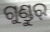
ଗୁଣ୍ଡୁର୍